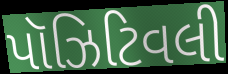
પૉઝિટિવલી